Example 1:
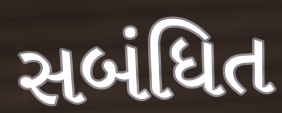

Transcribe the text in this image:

સબંધિત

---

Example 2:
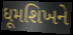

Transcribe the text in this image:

ધૂમશિખને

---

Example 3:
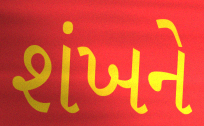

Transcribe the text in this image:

શંખને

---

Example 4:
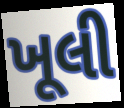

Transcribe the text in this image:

ખૂલી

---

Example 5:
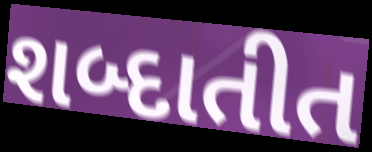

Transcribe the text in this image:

શબ્દાતીત